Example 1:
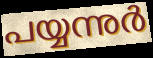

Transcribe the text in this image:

പയ്യന്നുർ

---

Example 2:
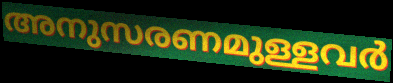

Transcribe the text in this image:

അനുസരണമുള്ളവർ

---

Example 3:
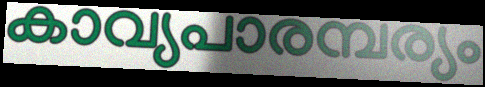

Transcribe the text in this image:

കാവ്യപാരമ്പര്യം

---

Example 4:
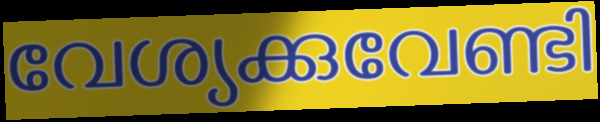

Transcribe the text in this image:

വേശ്യക്കുവേണ്ടി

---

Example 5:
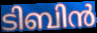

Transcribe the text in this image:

ടിബിൻ